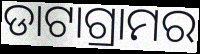
ଡାଟାଗ୍ରାମର